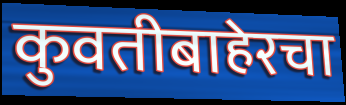
कुवतीबाहेरचा